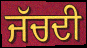
ਜੱਚਦੀ